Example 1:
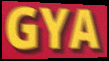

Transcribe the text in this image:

GYA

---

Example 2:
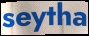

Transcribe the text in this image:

seytha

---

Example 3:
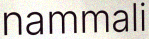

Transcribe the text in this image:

nammali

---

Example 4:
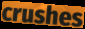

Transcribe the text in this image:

crushes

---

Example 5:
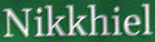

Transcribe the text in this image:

Nikkhiel